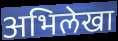
अभिलेखा